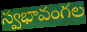
స్వభావంగల